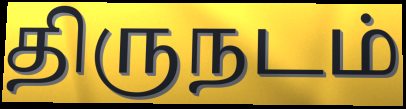
திருநடம்